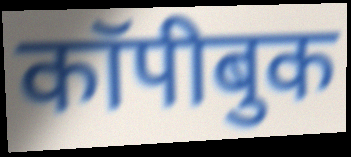
कॉपीबुक